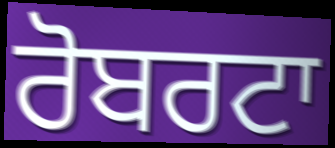
ਰੋਬਰਟਾ